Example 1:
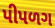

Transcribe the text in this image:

પીપળગ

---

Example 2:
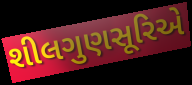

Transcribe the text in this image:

શીલગુણસૂરિએ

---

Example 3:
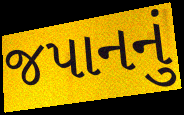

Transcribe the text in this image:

જપાનનું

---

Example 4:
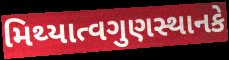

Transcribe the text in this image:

મિથ્યાત્વગુણસ્થાનકે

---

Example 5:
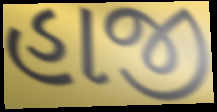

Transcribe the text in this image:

હાજી